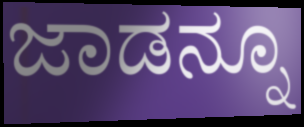
ಜಾಡನ್ನೂ